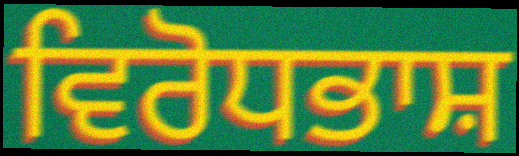
ਵਿਰੋਧਭਾਸ਼